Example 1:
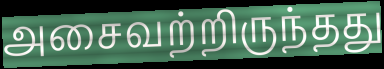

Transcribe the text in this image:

அசைவற்றிருந்தது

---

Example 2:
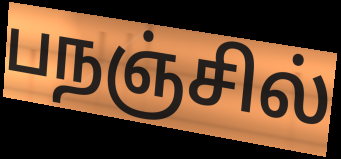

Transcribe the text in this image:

பநஞ்சில்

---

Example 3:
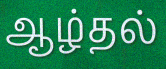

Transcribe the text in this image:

ஆழ்தல்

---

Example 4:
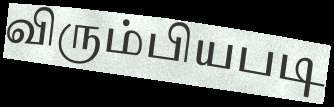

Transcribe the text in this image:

விரும்பியபடி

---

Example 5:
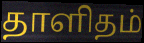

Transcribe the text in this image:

தாளிதம்